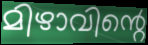
മിഴാവിന്റെ